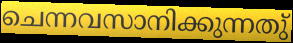
ചെന്നവസാനിക്കുന്നതു്